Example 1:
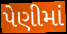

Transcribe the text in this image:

પેણીમાં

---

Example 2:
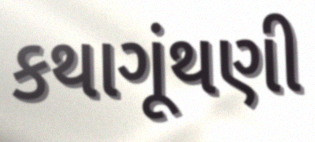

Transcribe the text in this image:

કથાગૂંથણી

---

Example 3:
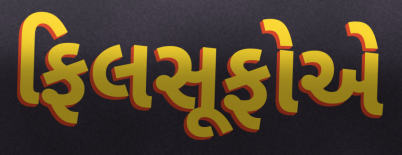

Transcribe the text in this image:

ફિલસૂફોએ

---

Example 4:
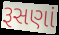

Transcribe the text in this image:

રૂસણાં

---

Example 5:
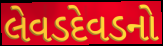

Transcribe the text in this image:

લેવડદેવડનો